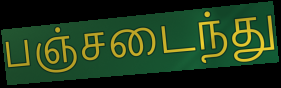
பஞ்சடைந்து